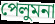
পেলুমনা